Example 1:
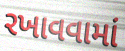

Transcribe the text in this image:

રખાવવામાં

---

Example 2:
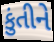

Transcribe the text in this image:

કુંતીને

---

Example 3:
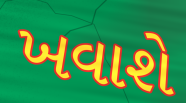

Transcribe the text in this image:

ખવાશે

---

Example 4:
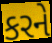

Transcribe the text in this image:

કરને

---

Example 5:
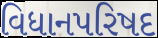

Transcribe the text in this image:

વિધાનપરિષદ